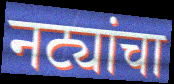
नट्यांचा